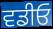
ਵਡੀਓ